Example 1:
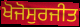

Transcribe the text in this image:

ਖੋਜੋਸੁਰਜੀਤ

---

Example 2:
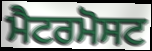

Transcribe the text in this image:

ਮੈਟਰਮੋਸਟ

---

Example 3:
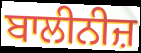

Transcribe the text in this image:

ਬਾਲੀਨੀਜ਼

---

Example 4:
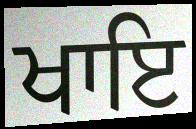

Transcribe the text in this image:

ਖਾਇ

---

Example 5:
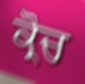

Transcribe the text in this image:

ਕ੍ਰੋਚ